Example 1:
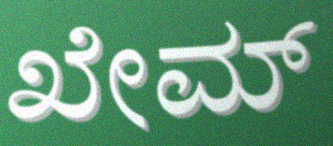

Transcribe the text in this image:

ಖೇಮ್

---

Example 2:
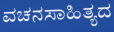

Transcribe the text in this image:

ವಚನಸಾಹಿತ್ಯದ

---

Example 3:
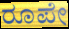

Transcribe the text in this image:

ರೂಪೇ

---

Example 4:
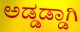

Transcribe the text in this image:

ಅಡ್ಡಡ್ಡಾಗಿ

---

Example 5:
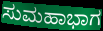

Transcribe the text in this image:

ಸುಮಹಾಭಾಗ